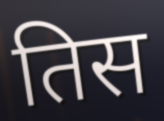
तिस